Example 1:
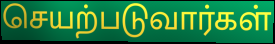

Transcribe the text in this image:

செயற்படுவார்கள்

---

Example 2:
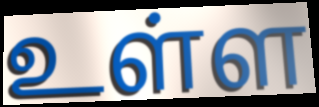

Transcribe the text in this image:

உள்ள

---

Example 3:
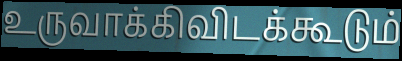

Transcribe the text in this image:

உருவாக்கிவிடக்கூடும்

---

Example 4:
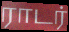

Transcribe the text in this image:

ராடர்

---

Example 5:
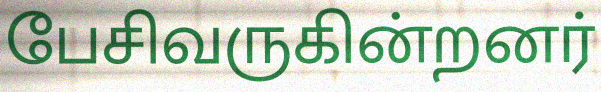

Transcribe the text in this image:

பேசிவருகின்றனர்